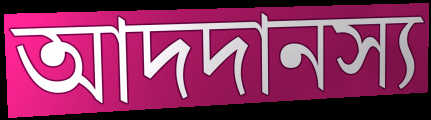
আদদানস্য